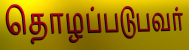
தொழப்படுபவர்